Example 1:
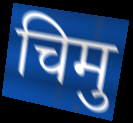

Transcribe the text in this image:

चिमु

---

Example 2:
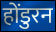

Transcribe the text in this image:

होंडुरन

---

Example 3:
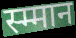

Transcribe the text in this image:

स्म्मान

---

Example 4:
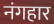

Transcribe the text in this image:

नंगहार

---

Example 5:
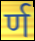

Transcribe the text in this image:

र्ण